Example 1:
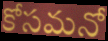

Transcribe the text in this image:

కోసమనో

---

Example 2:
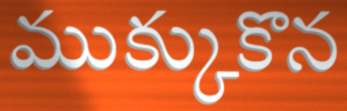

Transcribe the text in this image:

ముక్కుకొన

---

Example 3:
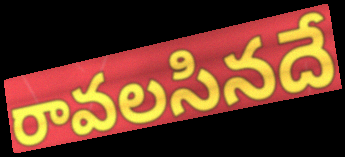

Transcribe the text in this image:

రావలసినదే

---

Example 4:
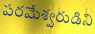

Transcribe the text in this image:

పరమేశ్వరుడిని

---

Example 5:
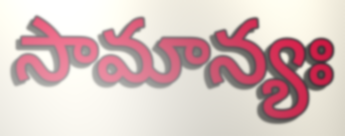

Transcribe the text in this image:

సామాన్యః